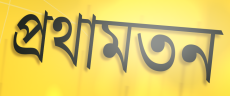
প্রথামতন